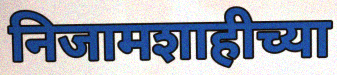
निजामशाहीच्या